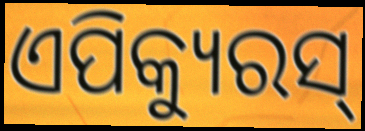
ଏପିକ୍ୟୁରସ୍